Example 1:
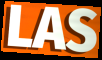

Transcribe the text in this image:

LAS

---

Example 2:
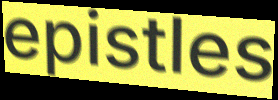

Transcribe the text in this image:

epistles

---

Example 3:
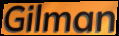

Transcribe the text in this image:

Gilman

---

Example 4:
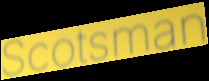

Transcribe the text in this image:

Scotsman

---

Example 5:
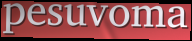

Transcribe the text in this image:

pesuvoma